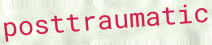
posttraumatic